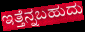
ಇತ್ತೆನ್ನಬಹುದು